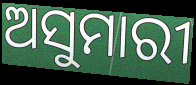
ଅସୁମାରୀ